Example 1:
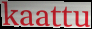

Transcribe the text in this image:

kaattu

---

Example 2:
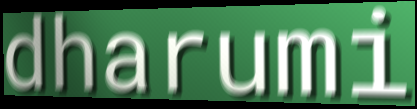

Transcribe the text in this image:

dharumi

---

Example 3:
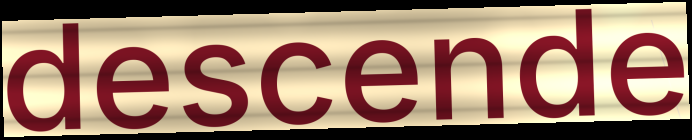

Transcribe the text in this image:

descende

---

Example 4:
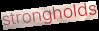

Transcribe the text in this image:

strongholds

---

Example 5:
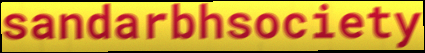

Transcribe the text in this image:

sandarbhsociety